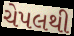
ચેપલથી